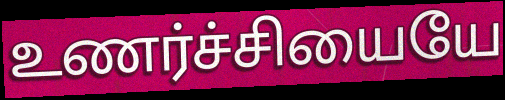
உணர்ச்சியையே